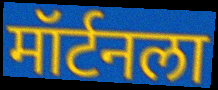
मॉर्टनला